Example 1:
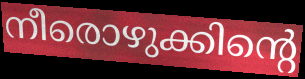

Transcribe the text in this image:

നീരൊഴുക്കിന്റെ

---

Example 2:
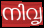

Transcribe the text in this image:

നിവൃ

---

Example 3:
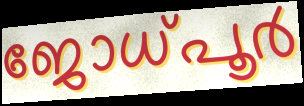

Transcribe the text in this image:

ജോധ്പൂർ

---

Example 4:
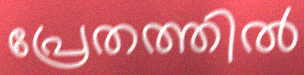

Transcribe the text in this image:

പ്രേതത്തിൽ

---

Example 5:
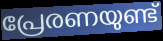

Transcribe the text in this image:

പ്രേരണയുണ്ട്